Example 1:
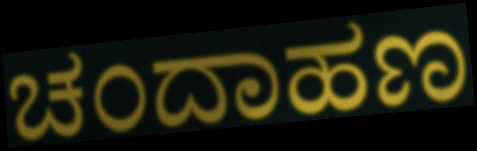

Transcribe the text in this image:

ಚಂದಾಹಣ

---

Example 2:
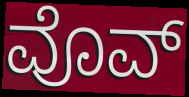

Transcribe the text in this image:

ವೊವ್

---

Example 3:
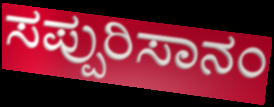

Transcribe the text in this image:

ಸಪ್ಪುರಿಸಾನಂ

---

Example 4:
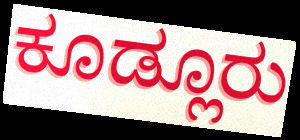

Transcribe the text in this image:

ಕೂಡ್ಲೂರು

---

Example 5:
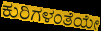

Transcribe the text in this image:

ಕುರಿಗಳಂತೆಯೇ